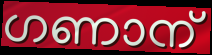
ഗണാന്